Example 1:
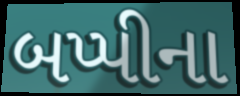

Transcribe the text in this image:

બપ્પીના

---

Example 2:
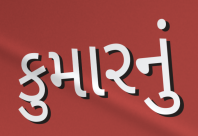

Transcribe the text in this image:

કુમારનું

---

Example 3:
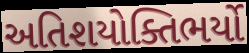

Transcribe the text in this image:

અતિશયોક્તિભર્યો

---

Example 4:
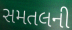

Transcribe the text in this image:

સમતલની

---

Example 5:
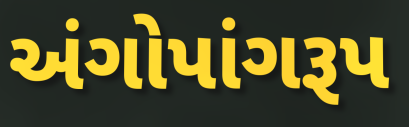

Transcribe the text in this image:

અંગોપાંગરૂપ